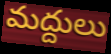
మద్దులు